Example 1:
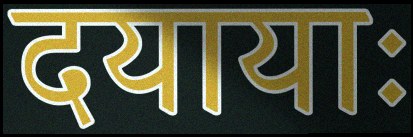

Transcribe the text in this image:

दयायाः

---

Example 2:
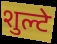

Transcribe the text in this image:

शुल्टे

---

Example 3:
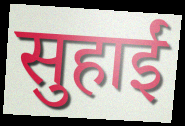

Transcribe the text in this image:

सुहाईं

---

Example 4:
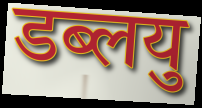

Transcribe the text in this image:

डब्लयु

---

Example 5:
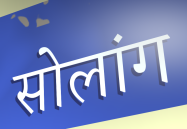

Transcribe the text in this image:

सोलांग